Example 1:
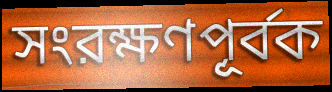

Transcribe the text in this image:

সংরক্ষণপূর্বক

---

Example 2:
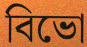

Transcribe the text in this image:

বিভো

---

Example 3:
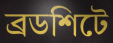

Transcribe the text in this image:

ব্রডশিটে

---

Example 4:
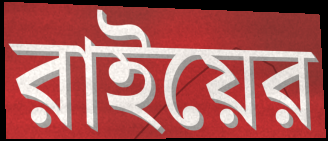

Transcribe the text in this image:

রাইয়ের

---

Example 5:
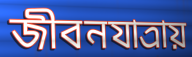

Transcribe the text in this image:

জীবনযাত্রায়